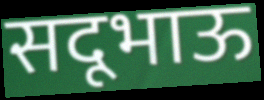
सदूभाऊ